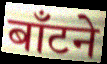
बाँटने